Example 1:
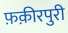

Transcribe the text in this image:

फ़क़ीरपुरी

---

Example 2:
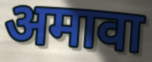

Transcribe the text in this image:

अमावा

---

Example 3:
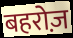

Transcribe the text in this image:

बहरोज़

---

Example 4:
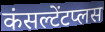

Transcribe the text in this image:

कंसल्टेंटप्लस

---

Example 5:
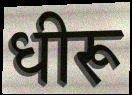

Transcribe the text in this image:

धीरू